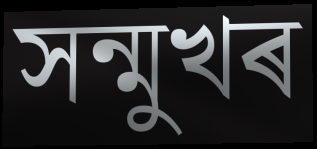
সন্মুখৰ